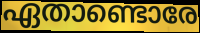
ഏതാണ്ടൊരേ